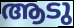
ആടു